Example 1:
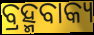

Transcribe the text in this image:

ବ୍ରହ୍ମବାକ୍ୟ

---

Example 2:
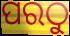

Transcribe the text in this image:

ପରଠୁ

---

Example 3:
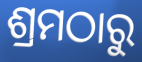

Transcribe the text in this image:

ଶ୍ରମଠାରୁ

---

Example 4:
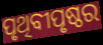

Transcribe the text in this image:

ପୃଥିବୀପୃଷ୍ଠର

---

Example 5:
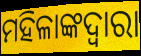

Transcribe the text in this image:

ମହିଳାଙ୍କଦ୍ୱାରା